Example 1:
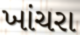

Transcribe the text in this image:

ખાંચરા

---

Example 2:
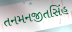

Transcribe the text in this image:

તનમનજીતસિંહ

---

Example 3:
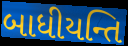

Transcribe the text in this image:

બાધીયન્તિ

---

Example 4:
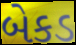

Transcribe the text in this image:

બેકડ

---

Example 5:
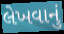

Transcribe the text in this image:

લેખવાનું